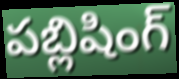
పబ్లిషింగ్